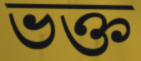
ভক্ত